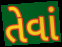
તેવાં